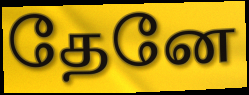
தேனே